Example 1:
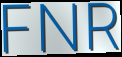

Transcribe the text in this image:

FNR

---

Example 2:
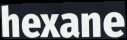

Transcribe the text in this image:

hexane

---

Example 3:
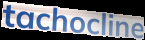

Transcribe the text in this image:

tachocline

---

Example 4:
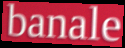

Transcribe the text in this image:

banale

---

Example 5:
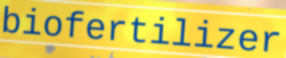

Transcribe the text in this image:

biofertilizer